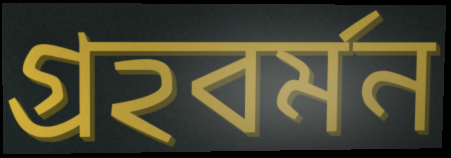
গ্রহবর্মন